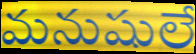
మనుషులే